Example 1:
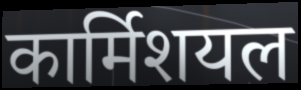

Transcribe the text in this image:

कार्मिशयल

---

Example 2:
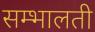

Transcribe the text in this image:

सम्भालती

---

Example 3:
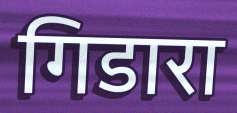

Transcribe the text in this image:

गिडारा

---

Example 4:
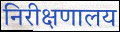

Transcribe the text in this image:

निरीक्षणालय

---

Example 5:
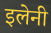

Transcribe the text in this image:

इलेनी